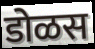
डोळस